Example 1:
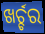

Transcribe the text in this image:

ଖର୍ଚ୍ଚର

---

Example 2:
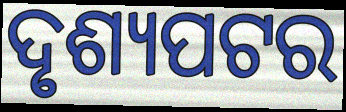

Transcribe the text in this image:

ଦୃଶ୍ୟପଟର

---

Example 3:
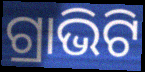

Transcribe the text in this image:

ଗ୍ରାଭିଟି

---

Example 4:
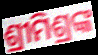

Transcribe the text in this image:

ଶ୍ରୀମିଶ୍ରଙ୍କ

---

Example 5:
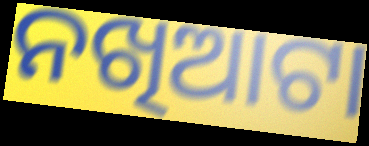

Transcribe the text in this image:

ନଖିଆଟା